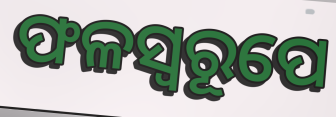
ଫଳସ୍ୱରୂପେ